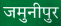
जमुनीपुर